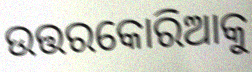
ଉତ୍ତରକୋରିଆକୁ